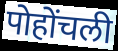
पोहोंचली